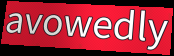
avowedly